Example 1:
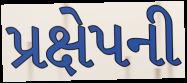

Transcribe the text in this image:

પ્રક્ષેપની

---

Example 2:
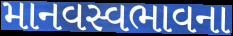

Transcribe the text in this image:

માનવસ્વભાવના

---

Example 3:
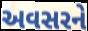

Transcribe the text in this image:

અવસરને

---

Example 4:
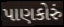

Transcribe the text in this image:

પાણકોરું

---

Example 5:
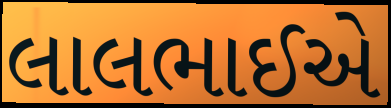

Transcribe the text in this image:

લાલભાઈએ